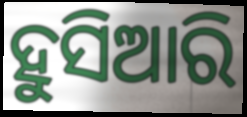
ହୁସିଆରି